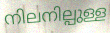
നിലനില്പുള്ള